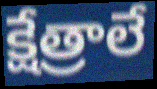
క్షేత్రాలే